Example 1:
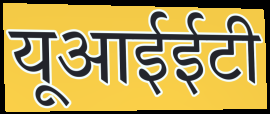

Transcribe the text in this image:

यूआईईटी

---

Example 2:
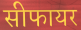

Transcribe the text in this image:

सीफायर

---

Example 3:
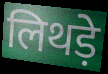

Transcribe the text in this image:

लिथड़े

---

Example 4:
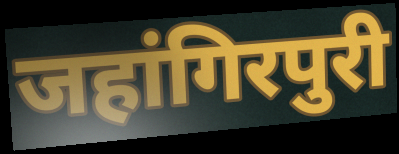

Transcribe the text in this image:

जहांगिरपुरी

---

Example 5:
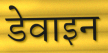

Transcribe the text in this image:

डेवाइन